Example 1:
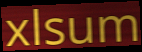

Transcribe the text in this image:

xlsum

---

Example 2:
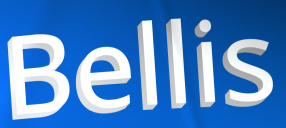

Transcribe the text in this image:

Bellis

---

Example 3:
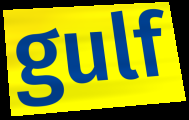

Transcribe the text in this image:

gulf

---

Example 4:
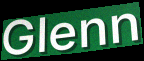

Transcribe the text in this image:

Glenn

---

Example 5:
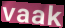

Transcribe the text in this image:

vaak